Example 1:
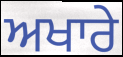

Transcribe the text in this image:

ਅਖਾਰੇ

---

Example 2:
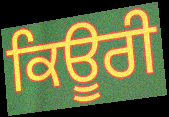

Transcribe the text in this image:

ਕਿਊਰੀ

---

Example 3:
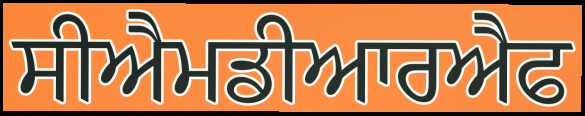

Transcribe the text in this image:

ਸੀਐਮਡੀਆਰਐਫ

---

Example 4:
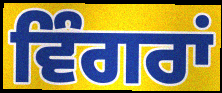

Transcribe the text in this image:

ਵਿੰਗਰਾਂ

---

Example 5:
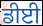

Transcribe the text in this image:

ਡੀਈ